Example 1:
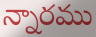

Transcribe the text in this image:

న్నారము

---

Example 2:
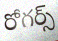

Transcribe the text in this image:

రోగర్స్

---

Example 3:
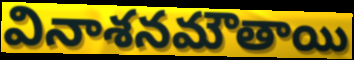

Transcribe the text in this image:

వినాశనమౌతాయి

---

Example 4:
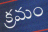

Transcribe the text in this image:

క్రమం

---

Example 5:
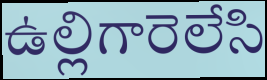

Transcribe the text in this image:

ఉల్లిగారెలేసి